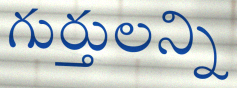
గుర్తులన్ని